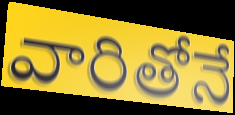
వారితోనే